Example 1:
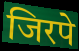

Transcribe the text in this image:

जिरपे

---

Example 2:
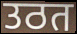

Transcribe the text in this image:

उठत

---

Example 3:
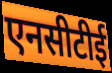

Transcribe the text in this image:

एनसीटीई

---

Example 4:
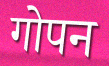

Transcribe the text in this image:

गोपन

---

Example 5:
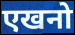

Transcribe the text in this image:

एखनो